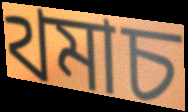
থমাচ